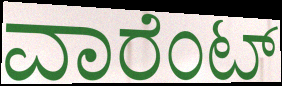
ವಾರೆಂಟ್